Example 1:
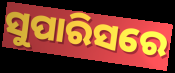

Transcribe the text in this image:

ସୁପାରିସରେ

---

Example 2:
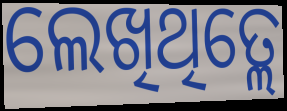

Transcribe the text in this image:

ଲେଖିଥିତ୍ଲେ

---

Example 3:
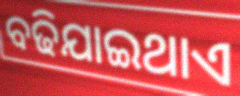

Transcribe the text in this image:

ବଢିଯାଇଥାଏ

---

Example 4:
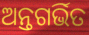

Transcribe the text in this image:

ଅନ୍ତଗର୍ଭିତ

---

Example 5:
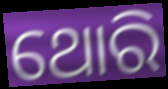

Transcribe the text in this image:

ଥୋରି